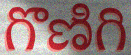
గొణిగి